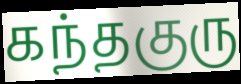
கந்தகுரு